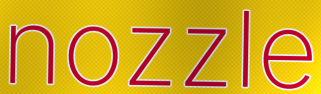
nozzle